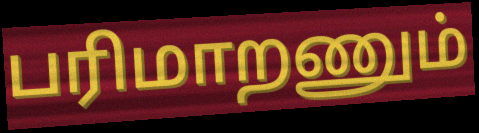
பரிமாறணும்